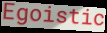
Egoistic